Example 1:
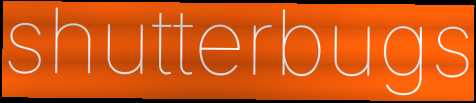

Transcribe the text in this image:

shutterbugs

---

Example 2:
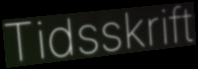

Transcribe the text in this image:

Tidsskrift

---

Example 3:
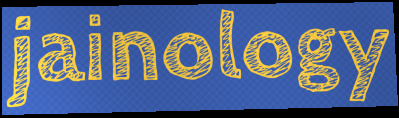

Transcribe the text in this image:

jainology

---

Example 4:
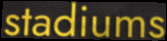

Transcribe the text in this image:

stadiums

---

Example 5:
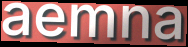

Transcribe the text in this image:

aemna